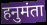
हनुमंता